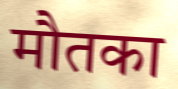
मौतका